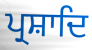
ਪ੍ਰਸ਼ਾਦਿ